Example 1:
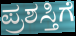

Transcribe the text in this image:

ಪ್ರಶಸ್ತಿಗೆ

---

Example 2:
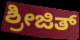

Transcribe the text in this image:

ಶ್ರೀಜಿತ್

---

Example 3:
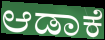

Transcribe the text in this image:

ಆಡಾಕೆ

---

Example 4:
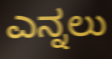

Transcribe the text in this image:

ಎನ್ನಲು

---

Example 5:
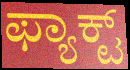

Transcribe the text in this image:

ಫ್ಯಾಕ್ಟ್